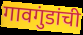
गावगुंडांची